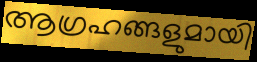
ആഗ്രഹങ്ങളുമായി